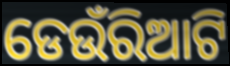
ଡେଉଁରିଆଟି